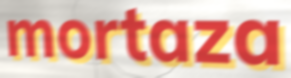
mortaza